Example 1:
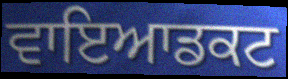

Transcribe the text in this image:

ਵਾਇਆਡਕਟ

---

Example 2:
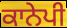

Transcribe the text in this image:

ਕਾਨੇਪੀ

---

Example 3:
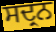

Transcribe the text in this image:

ਸਦ੍ਰਨ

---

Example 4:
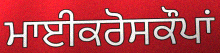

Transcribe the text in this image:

ਮਾਈਕਰੋਸਕੌਪਾਂ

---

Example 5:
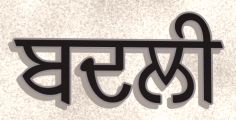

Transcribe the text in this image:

ਬਦਲੀ